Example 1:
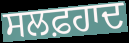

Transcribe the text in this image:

ਸਲਫ਼ਹਾਦ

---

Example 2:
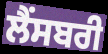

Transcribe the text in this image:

ਲੈਂਸਬਰੀ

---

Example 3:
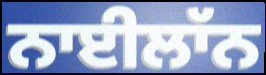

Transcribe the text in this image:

ਨਾਈਲਾੱਨ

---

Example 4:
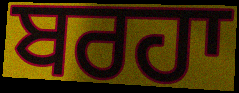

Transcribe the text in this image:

ਬਰਹਾ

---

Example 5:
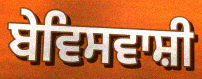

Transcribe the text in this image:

ਬੇਵਿਸਵਾਸ਼ੀ